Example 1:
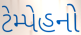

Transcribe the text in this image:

ટેમ્પેહનો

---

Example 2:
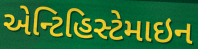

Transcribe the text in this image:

એન્ટિહિસ્ટેમાઇન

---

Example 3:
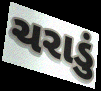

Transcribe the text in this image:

ચરાડું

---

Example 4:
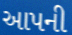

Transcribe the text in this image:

આપની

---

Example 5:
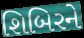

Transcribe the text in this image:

શિબિરને